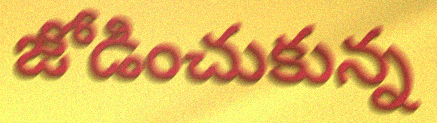
జోడించుకున్న